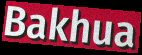
Bakhua